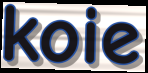
koie